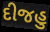
દીજહુ